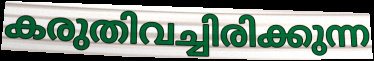
കരുതിവച്ചിരിക്കുന്ന